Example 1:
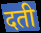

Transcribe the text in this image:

दती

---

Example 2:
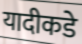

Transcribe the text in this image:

यादीकडे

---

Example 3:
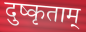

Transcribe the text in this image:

दुष्कृताम्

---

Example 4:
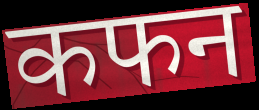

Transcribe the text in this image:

कफन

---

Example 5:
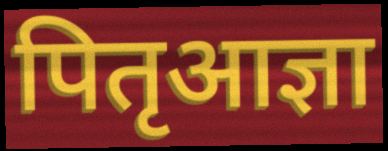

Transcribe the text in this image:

पितृआज्ञा